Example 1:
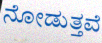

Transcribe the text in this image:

ನೋಡುತ್ತವೆ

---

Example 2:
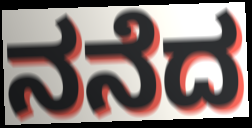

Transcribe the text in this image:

ನನೆದ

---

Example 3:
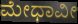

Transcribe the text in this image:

ಮೇಧಾವೀ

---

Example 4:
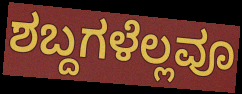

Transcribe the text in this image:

ಶಬ್ದಗಳೆಲ್ಲವೂ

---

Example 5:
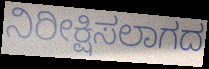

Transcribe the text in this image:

ನಿರೀಕ್ಷಿಸಲಾಗದ